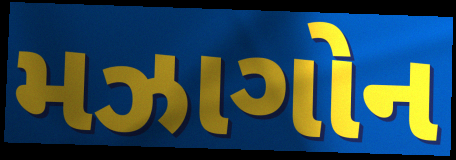
મઝાગોન